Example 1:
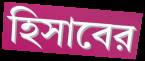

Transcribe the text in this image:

হিসাবের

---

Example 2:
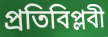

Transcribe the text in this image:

প্রতিবিপ্লবী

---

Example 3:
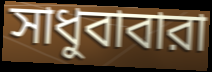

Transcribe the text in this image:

সাধুবাবারা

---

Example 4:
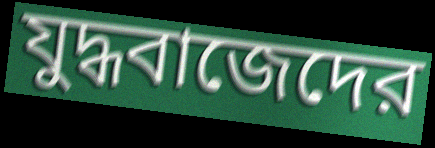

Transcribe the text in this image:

যুদ্ধবাজেদের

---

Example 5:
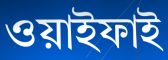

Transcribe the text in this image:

ওয়াইফাই